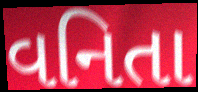
વનિતા